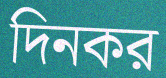
দিনকর